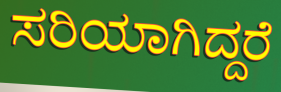
ಸರಿಯಾಗಿದ್ದರೆ